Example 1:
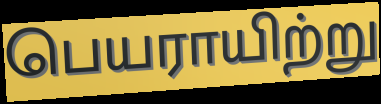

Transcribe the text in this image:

பெயராயிற்று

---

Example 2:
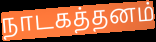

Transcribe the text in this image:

நாடகத்தனம்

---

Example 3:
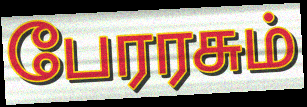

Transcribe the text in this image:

பேரரசும்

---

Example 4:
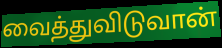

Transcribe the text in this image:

வைத்துவிடுவான்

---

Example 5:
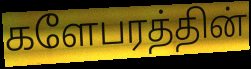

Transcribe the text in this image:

களேபரத்தின்